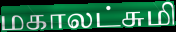
மகாலட்சுமி